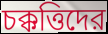
চক্কত্তিদের